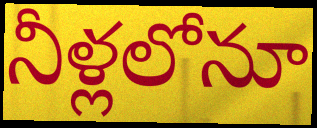
నీళ్లలోనూ